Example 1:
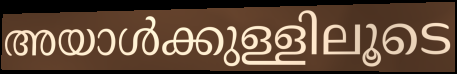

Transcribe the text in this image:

അയാൾക്കുള്ളിലൂടെ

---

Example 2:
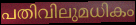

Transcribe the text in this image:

പതിവിലുമധികം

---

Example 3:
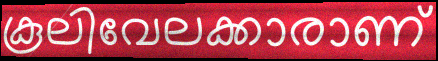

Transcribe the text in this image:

കൂലിവേലക്കാരാണ്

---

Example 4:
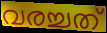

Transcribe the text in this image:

വരച്ചത്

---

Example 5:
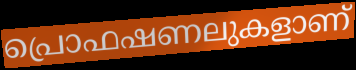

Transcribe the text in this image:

പ്രൊഫഷണലുകളാണ്